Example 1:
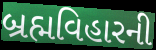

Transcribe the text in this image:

બ્રહ્મવિહારની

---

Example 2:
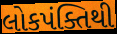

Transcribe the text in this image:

લોકપંક્તિથી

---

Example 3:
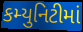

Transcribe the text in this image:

કમ્યુનિટીમાં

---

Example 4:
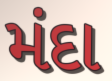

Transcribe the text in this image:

મંદા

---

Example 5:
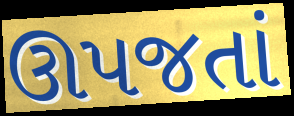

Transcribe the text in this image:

ઊપજતાં